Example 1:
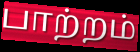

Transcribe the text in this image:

பாற்றம்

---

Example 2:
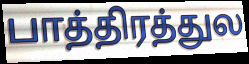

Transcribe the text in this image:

பாத்திரத்துல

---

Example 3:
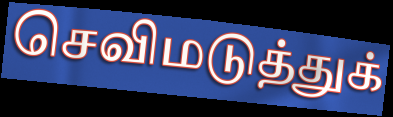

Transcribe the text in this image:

செவிமடுத்துக்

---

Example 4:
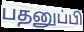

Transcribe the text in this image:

பதனுப்பி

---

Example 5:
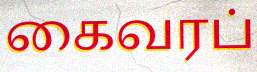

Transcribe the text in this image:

கைவரப்